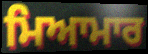
ਮਿਆਮਾਰ